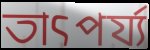
তাৎপৰ্য্য